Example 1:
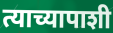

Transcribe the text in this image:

त्याच्यापाशी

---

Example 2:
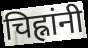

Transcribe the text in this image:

चिह्नांनी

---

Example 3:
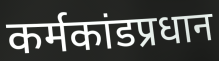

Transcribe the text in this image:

कर्मकांडप्रधान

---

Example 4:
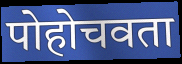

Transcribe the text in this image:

पोहोचवता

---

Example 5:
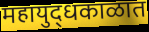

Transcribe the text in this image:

महायुद्धकाळात